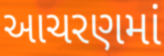
આચરણમાં